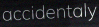
accidentaly